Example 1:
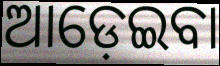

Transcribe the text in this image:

ଆଡ଼େଇବା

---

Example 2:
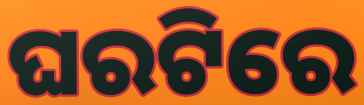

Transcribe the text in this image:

ଘରଟିରେ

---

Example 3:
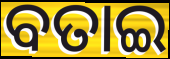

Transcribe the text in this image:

ବତାଇ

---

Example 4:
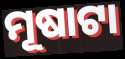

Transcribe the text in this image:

ମୂଷାଟା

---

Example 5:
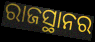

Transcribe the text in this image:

ରାଜସ୍ଥାନର